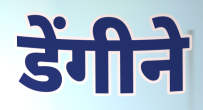
डेंगीने